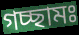
গচ্ছামঃ